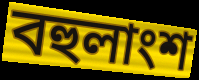
বহুলাংশ